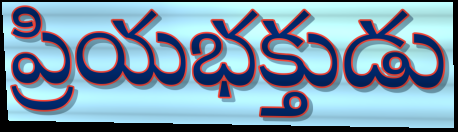
ప్రియభక్తుడు